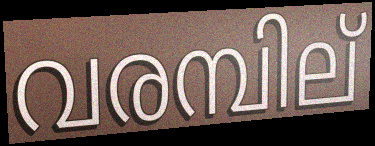
വരമ്പില്